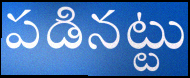
పడినట్టు